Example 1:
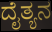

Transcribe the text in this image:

ದೈತ್ಯನ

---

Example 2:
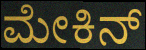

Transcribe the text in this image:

ಮೇಕಿನ್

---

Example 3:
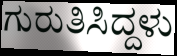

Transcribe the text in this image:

ಗುರುತಿಸಿದ್ದಳು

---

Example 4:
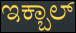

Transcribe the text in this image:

ಇಕ್ಬಾಲ್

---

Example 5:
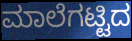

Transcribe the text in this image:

ಮಾಲೆಗಟ್ಟಿದ